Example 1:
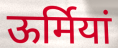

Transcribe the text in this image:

ऊर्मियां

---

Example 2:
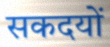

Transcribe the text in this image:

सकदयों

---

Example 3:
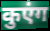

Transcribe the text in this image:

कुएंग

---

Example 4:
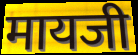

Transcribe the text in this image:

मायजी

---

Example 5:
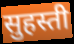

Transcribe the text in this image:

सुहस्ती